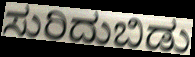
ಸುರಿದುಬಿಡು